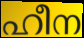
ഹീന